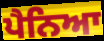
ਪੈਨਿਆ